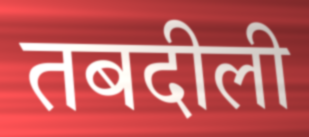
तबदीली